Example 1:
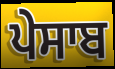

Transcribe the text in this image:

ਪੇਸਾਬ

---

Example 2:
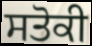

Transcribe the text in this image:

ਸਤੋਕੀ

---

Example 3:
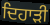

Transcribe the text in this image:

ਦਿਹਾੜੀ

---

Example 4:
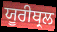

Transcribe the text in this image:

ਯੂਰੀਥ੍ਰਲ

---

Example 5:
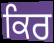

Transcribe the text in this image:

ਕਿਰ